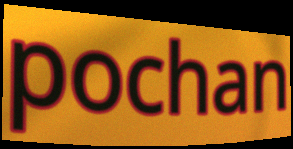
pochan